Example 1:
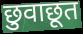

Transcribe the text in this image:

छुवाछूत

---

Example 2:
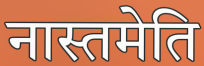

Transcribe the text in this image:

नास्तमेति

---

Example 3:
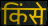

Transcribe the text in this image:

किंसे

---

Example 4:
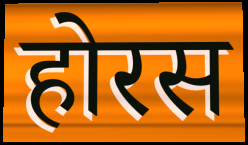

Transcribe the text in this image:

होरस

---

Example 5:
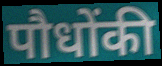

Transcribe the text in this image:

पौधोंकी